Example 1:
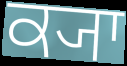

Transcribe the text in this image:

ਕ੍ਯਾ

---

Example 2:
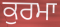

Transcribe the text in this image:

ਕੁਰਮਾ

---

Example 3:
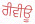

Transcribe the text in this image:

ਰੀਵੀਊ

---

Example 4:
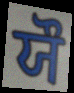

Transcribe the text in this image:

ਯੌ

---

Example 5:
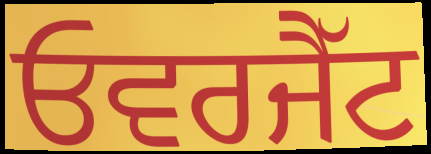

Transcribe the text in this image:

ਓਵਰਜੈੱਟ